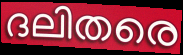
ദലിതരെ